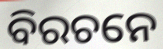
ବିରଚନେ